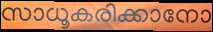
സാധൂകരിക്കാനോ